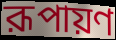
রূপায়ণ